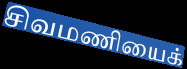
சிவமணியைக்